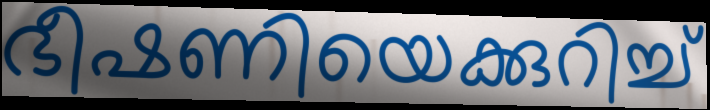
ഭീഷണിയെക്കുറിച്ച്